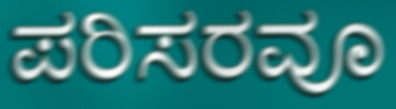
ಪರಿಸರವೂ